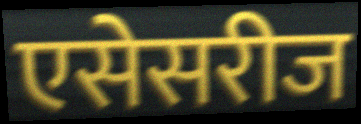
एसेसरीज